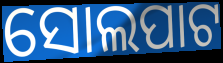
ସୋଲପାଟ